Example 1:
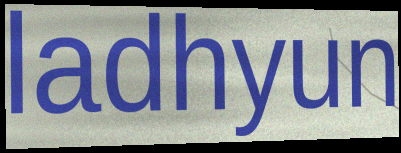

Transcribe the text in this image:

ladhyun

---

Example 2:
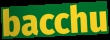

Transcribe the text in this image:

bacchu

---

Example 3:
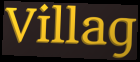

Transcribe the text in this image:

Villag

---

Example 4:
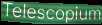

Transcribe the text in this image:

Telescopium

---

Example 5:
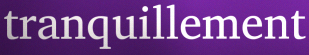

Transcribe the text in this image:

tranquillement